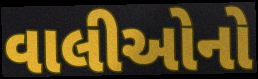
વાલીઓનો